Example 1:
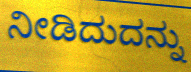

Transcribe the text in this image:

ನೀಡಿದುದನ್ನು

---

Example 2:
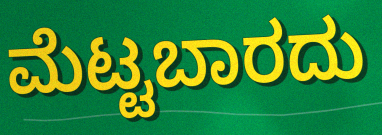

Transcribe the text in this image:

ಮೆಟ್ಟಬಾರದು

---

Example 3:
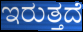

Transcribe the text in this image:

ಇರುತ್ತದೆ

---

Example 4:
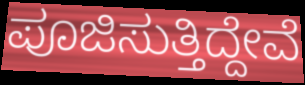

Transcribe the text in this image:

ಪೂಜಿಸುತ್ತಿದ್ದೇವೆ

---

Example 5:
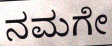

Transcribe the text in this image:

ನಮಗೇ